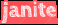
janite